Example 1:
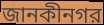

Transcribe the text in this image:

জানকীনগর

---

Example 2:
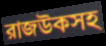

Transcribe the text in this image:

রাজউকসহ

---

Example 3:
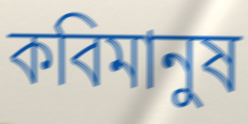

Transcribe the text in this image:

কবিমানুষ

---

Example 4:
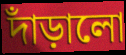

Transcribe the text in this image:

দাঁড়ালো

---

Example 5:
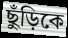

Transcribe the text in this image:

ছুঁড়িকে